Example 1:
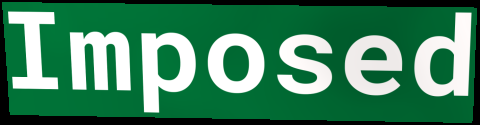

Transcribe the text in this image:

Imposed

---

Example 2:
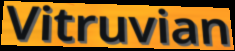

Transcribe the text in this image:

Vitruvian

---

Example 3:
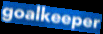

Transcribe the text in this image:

goalkeeper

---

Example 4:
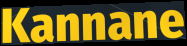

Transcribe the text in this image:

Kannane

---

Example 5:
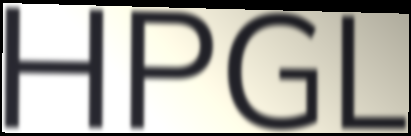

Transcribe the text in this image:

HPGL